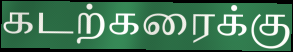
கடற்கரைக்கு